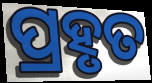
ପ୍ରହୃତ